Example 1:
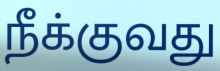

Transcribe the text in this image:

நீக்குவது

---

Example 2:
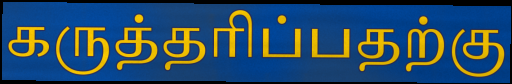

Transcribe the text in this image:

கருத்தரிப்பதற்கு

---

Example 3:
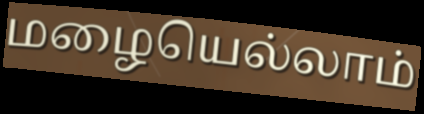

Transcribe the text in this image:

மழையெல்லாம்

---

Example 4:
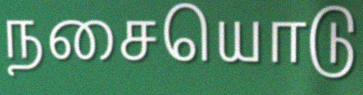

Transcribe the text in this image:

நசையொடு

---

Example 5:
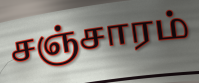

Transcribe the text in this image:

சஞ்சாரம்